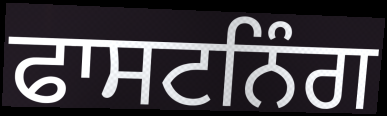
ਫਾਸਟਨਿੰਗ